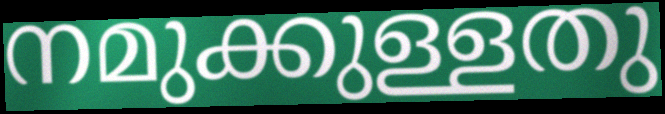
നമുക്കുള്ളതു